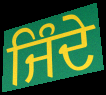
ਜਿੰਦੇ